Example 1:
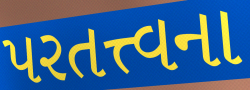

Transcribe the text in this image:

પરતત્ત્વના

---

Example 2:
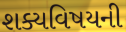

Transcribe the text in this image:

શક્યવિષયની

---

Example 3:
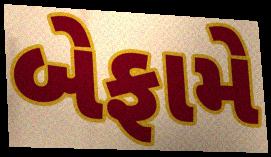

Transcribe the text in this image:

બેફામે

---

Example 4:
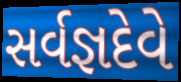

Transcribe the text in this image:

સર્વજ્ઞદેવે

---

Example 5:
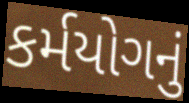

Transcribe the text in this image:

કર્મયોગનું